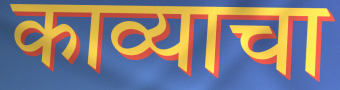
काव्याचा